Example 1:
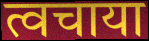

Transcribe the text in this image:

त्वचाया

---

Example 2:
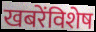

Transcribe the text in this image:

खबरेंविशेष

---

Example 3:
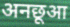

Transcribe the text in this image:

अनछूआ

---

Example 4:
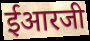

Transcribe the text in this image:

ईआरजी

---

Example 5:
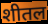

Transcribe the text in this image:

शीतल